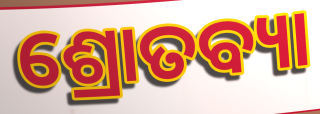
ଶ୍ରୋତବ୍ୟା